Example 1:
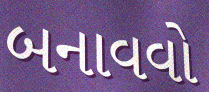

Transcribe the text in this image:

બનાવવો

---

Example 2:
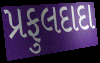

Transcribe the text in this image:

પ્રફુલદાદા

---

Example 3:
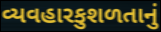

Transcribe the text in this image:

વ્યવહારકુશળતાનું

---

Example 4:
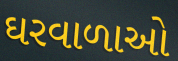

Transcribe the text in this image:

ઘરવાળાઓ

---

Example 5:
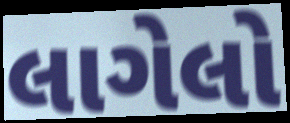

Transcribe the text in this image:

લાગેલો